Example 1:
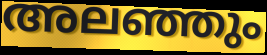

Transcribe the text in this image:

അലഞ്ഞും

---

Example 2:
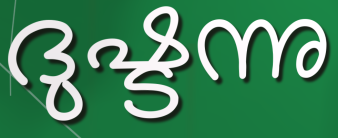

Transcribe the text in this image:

ദുഷ്ടന്നു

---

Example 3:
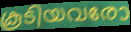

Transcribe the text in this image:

കൂടിയവരോ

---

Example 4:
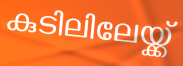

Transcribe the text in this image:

കുടിലിലേയ്ക്ക്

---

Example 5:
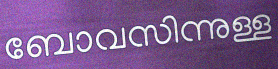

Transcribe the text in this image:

ബോവസിന്നുള്ള